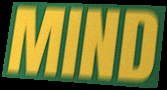
MIND